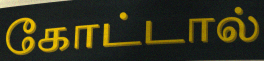
கோட்டால்